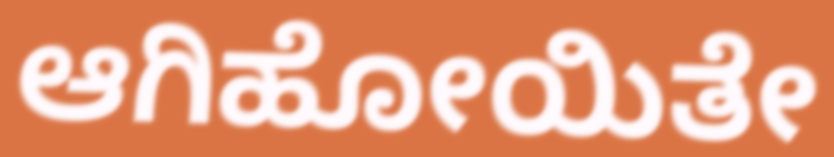
ಆಗಿಹೋಯಿತೇ